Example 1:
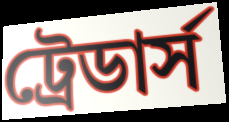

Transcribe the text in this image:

ট্রেডার্স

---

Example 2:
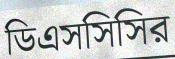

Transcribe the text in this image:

ডিএসসিসির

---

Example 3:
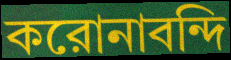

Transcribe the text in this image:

করোনাবন্দি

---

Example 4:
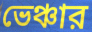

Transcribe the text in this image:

ভেঞ্চার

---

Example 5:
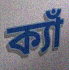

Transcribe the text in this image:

ক্যাঁ